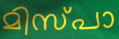
മിസ്പാ